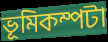
ভূমিকম্পটা